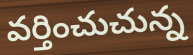
వర్తించుచున్న